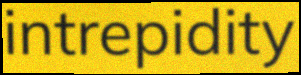
intrepidity